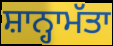
ਸ਼ਾਨ੍ਹਾਮੱਤਾ